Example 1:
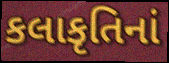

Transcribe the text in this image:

કલાકૃતિનાં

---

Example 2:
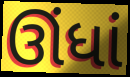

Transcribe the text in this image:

ઊંધાં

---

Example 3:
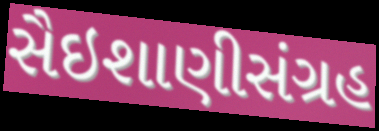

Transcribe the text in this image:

સૈઇશાણીસંગ્રહ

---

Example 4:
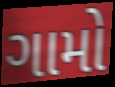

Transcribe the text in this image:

ગામો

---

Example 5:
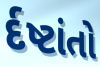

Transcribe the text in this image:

ર્દષ્ટાંતો